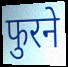
फुरने